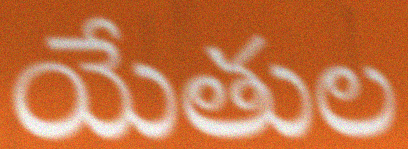
యేతుల